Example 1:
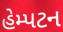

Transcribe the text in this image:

હેમ્પટન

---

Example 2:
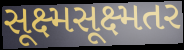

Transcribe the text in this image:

સૂક્ષ્મસૂક્ષ્મતર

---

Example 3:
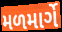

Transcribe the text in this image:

મળમાર્ગે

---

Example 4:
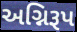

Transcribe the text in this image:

અગ્નિરૂપ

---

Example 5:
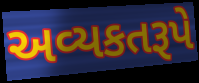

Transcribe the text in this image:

અવ્યકતરૂપે